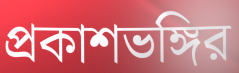
প্রকাশভঙ্গির